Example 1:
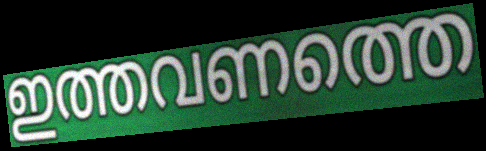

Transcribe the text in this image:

ഇത്തവണത്തെ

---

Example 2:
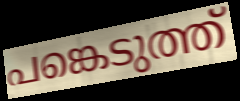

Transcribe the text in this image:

പങ്കെടുത്ത്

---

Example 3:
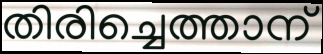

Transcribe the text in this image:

തിരിച്ചെത്താന്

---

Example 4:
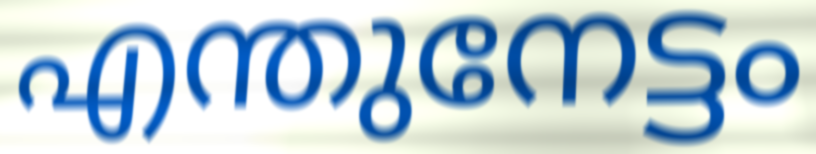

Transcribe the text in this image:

എന്തുനേട്ടം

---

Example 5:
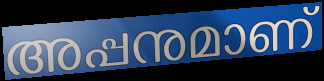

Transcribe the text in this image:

അപ്പനുമാണ്